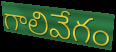
గాలివేగం